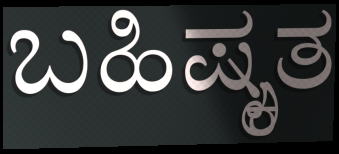
ಬಹಿಷ್ಕೃತ